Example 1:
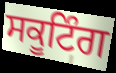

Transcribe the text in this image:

ਸਕੂਟਿੰਗ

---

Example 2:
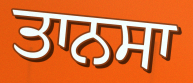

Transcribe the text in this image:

ਤਾਨਸਾ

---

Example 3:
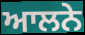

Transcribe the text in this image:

ਆਲਨੇ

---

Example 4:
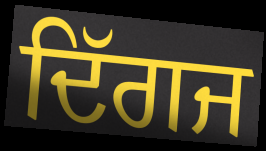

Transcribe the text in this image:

ਦਿੱਗਜ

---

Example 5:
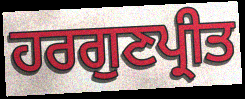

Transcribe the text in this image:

ਹਰਗੁਣਪ੍ਰੀਤ